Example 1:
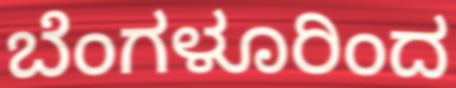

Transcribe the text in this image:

ಬೆಂಗಳೂರಿಂದ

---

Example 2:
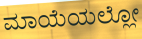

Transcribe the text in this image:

ಮಾಯೆಯಲ್ಲೋ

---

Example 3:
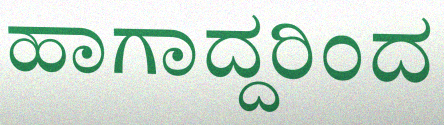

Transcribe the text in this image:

ಹಾಗಾದ್ದರಿಂದ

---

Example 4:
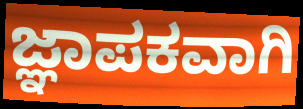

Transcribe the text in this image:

ಜ್ಞಾಪಕವಾಗಿ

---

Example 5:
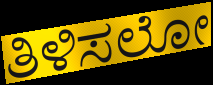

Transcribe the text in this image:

ತಿಳಿಸಲೋ